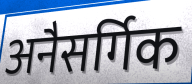
अनैसर्गिक